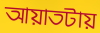
আয়াতটায়